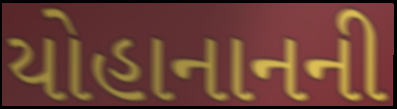
યોહાનાનની